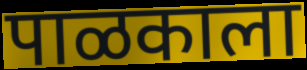
पाळकाला